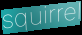
squirrel